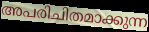
അപരിചിതമാക്കുന്ന